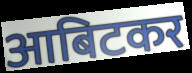
आबिटकर